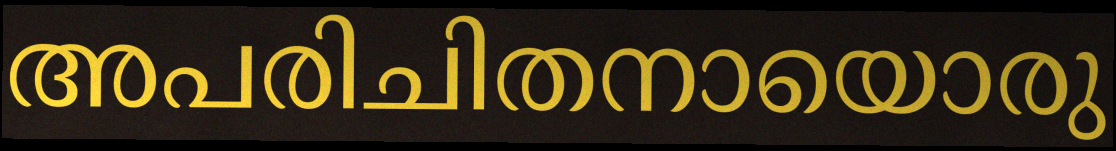
അപരിചിതനായൊരു